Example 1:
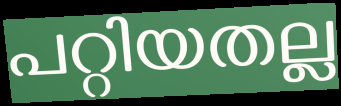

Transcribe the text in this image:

പറ്റിയതല്ല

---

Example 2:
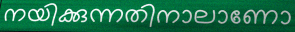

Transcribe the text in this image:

നയിക്കുന്നതിനാലാണോ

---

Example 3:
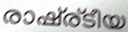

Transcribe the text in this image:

രാഷ്ര്ടീയ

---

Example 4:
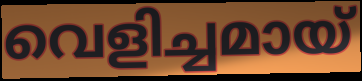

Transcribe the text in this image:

വെളിച്ചമായ്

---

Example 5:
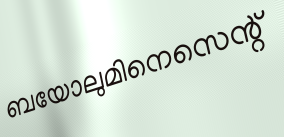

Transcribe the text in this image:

ബയോലുമിനെസെന്റ്